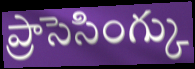
ప్రాసెసింగ్కు